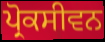
ਪ੍ਰੋਕਸੀਵਨ